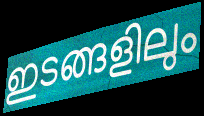
ഇടങ്ങളിലും